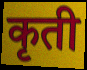
कृती